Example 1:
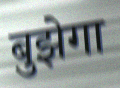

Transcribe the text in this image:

बुझेगा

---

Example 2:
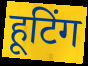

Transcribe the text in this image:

हूटिंग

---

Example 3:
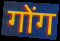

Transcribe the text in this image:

गोंग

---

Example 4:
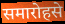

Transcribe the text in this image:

समारोहसे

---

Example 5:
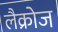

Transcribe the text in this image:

लैक्रोज